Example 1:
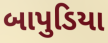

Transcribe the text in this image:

બાપુડિયા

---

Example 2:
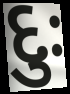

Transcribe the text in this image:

દુઃ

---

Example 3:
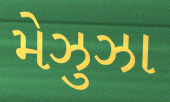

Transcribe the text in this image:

મેઝુઝા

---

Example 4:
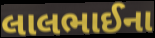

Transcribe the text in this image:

લાલભાઈના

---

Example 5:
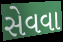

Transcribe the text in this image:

સેવવા